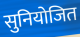
सुनियोजित